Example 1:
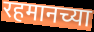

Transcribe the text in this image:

रहमानच्या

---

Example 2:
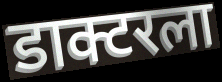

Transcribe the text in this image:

डाक्टरला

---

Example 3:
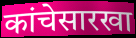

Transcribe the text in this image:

कांचेसारखा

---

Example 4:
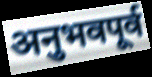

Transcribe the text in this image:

अनुभवपूर्व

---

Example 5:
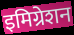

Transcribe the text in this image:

इमिग्रेशन